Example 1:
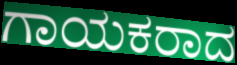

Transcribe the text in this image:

ಗಾಯಕರಾದ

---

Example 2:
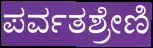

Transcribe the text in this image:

ಪರ್ವತಶ್ರೇಣಿ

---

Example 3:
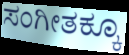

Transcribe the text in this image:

ಸಂಗೀತಕ್ಕೂ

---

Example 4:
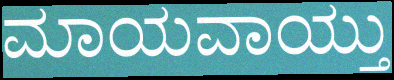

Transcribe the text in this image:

ಮಾಯವಾಯ್ತು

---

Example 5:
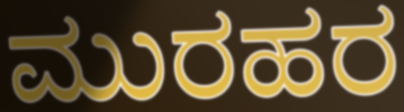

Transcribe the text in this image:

ಮುರಹರ